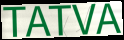
TATVA